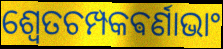
ଶ୍ଵେତଚମ୍ପକଵର୍ଣାଭାଂ